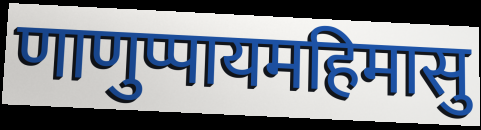
णाणुप्पायमहिमासु